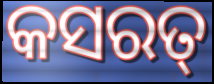
କସରତ୍